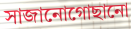
সাজানোগোছানো